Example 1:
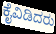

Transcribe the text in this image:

ಕೈವಿಡಿದರು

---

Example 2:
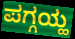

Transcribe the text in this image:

ಪಗ್ಗಯ್ಹ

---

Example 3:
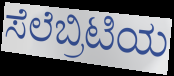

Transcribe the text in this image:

ಸೆಲೆಬ್ರಿಟಿಯ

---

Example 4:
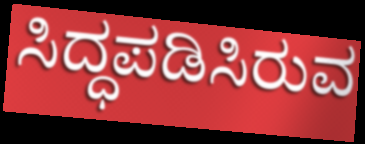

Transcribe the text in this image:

ಸಿದ್ಧಪಡಿಸಿರುವ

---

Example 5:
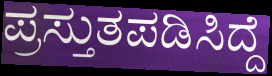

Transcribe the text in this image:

ಪ್ರಸ್ತುತಪಡಿಸಿದ್ದೆ